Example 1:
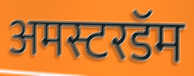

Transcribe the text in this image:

अमस्टरडॅम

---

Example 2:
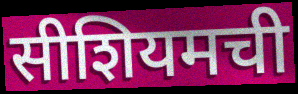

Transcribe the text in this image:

सीशियमची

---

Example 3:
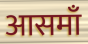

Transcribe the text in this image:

आसमाँ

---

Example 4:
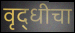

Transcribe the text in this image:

वृद्धीचा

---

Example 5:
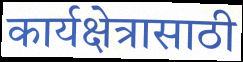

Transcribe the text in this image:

कार्यक्षेत्रासाठी